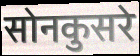
सोनकुसरे